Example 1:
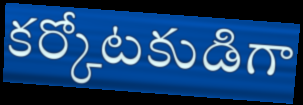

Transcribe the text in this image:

కర్కోటకుడిగా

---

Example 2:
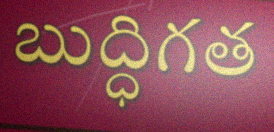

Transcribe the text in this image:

బుద్ధిగత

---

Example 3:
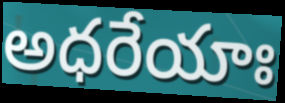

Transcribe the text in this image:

అధరేయాః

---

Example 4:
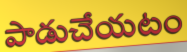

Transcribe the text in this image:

పాడుచేయటం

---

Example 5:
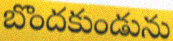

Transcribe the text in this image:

బొందకుండును